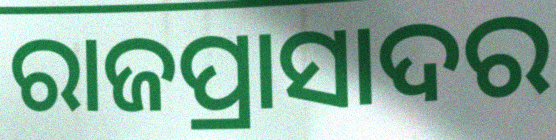
ରାଜପ୍ରାସାଦର